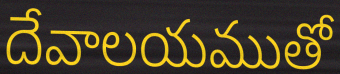
దేవాలయముతో